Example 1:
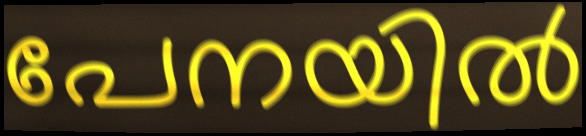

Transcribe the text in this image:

പേനയിൽ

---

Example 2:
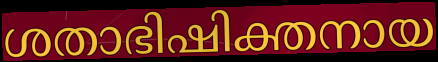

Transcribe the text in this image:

ശതാഭിഷിക്തനായ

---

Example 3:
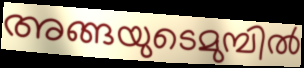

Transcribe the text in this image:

അങ്ങയുടെമുമ്പിൽ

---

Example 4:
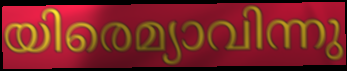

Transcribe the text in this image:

യിരെമ്യാവിന്നു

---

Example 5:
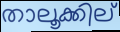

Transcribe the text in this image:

താലൂക്കില്